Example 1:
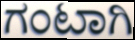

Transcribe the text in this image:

ಗಂಟಾಗಿ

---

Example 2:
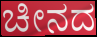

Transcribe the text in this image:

ಚೀನದ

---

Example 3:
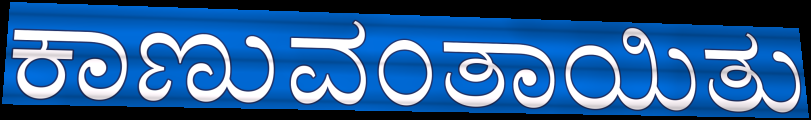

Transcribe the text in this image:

ಕಾಣುವಂತಾಯಿತು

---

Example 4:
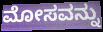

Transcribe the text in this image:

ಮೋಸವನ್ನು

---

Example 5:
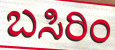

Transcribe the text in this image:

ಬಸಿರಿಂ